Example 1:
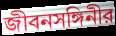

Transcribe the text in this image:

জীবনসঙ্গিনীর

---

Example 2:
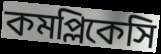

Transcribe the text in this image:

কমপ্লিকেসি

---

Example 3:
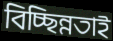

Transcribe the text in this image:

বিচ্ছিন্নতাই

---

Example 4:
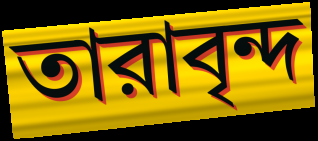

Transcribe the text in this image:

তারাবৃন্দ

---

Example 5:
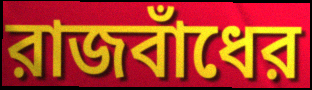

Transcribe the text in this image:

রাজবাঁধের